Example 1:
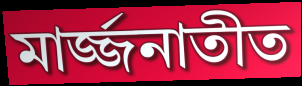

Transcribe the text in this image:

মার্জ্জনাতীত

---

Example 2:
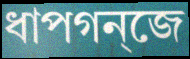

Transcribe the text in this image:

ধাপগন্জে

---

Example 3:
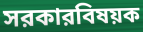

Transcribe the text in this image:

সরকারবিষয়ক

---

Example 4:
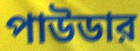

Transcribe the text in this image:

পাউডার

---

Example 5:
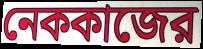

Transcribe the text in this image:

নেককাজের